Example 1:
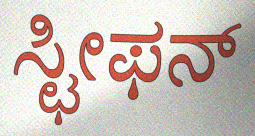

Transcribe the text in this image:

ಸ್ಟೀಫನ್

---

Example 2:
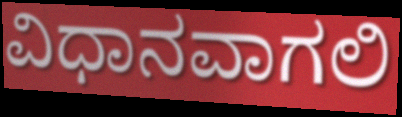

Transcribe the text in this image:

ವಿಧಾನವಾಗಲಿ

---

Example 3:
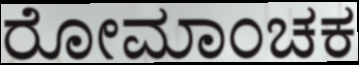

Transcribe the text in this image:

ರೋಮಾಂಚಕ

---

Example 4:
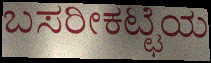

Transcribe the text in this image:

ಬಸರೀಕಟ್ಟೆಯ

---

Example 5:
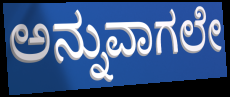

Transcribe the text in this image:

ಅನ್ನುವಾಗಲೇ